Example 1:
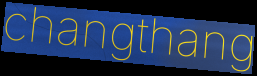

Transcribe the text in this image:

changthang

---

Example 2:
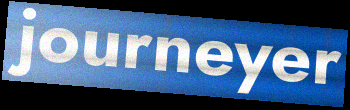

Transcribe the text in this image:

journeyer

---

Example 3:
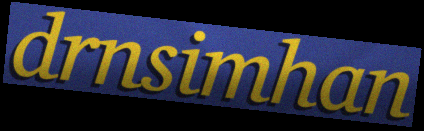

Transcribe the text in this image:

drnsimhan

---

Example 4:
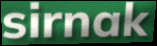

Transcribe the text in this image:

sirnak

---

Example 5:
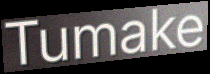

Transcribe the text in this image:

Tumake